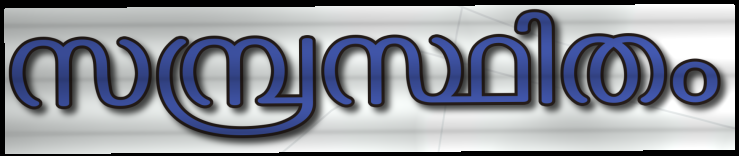
സമ്പ്രസ്ഥിതം